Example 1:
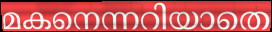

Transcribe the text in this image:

മകനെന്നറിയാതെ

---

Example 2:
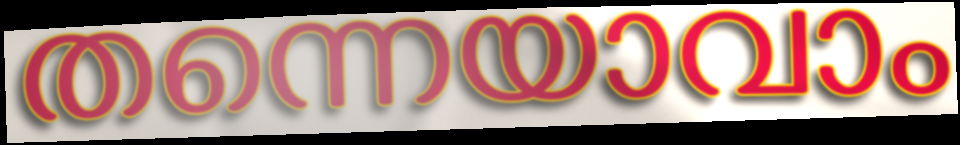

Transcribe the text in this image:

തന്നെയാവാം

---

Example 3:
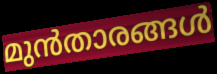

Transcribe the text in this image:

മുൻതാരങ്ങൾ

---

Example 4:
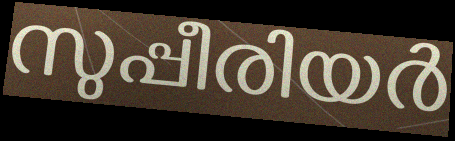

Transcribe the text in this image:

സുപ്പീരിയർ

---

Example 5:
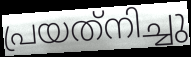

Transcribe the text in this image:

പ്രയത്‌നിച്ചു